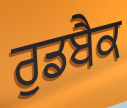
ਰੁਡਬੈਕ